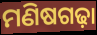
ମଣିଷଗଢ଼ା